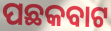
ପଛକବାଟ